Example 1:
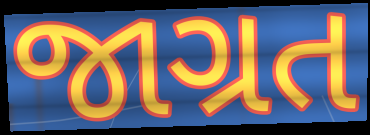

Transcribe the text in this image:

જાગ્રત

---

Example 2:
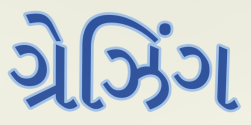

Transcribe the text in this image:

ગ્રેઝિંગ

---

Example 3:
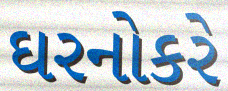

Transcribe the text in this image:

ઘરનોકરે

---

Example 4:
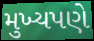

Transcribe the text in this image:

મુખ્યપણે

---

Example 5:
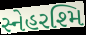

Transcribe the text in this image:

સ્નેહરશ્મિ